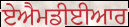
ਏਐਮਡੀਈਆਰ